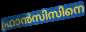
ഫ്രാൻസിസിനെ